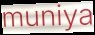
muniya